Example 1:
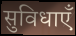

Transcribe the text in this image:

सुविधाएँ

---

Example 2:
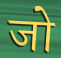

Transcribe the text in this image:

जो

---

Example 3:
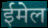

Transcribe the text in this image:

ईमेल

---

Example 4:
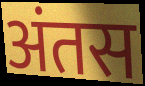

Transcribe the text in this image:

अंतस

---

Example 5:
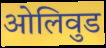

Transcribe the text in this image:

ओलिवुड